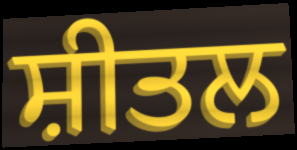
ਸ਼ੀਤਲ